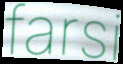
farsi